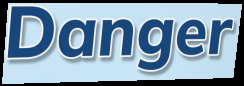
Danger